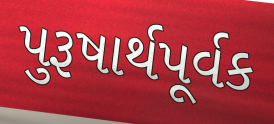
પુરૂષાર્થપૂર્વક